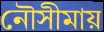
নৌসীমায়